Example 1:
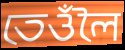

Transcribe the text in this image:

তেওঁলৈ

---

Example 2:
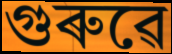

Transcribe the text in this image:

গুৰুৱে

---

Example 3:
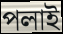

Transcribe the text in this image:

পলাই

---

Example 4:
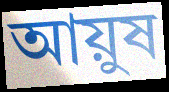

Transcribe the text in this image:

আয়ুষ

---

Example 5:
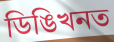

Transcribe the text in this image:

ডিঙিখনত